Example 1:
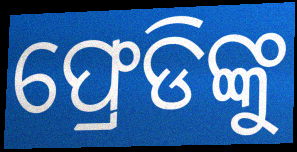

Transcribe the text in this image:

ଫ୍ରେଡିଙ୍କୁ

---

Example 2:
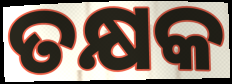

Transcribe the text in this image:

ତକ୍ଷକ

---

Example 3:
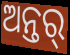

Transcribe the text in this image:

ଅନ୍ତର୍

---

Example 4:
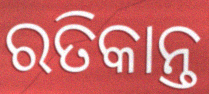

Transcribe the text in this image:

ରତିକାନ୍ତ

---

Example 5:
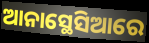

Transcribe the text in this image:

ଆନାସ୍ଥେସିଆରେ